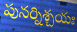
పునర్నిశ్చయః